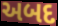
અબદ